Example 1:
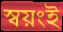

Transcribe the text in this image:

স্বয়ংই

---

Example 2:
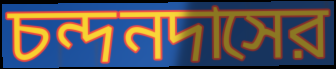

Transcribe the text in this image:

চন্দনদাসের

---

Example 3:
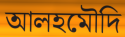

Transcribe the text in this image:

আলহমৌদি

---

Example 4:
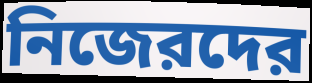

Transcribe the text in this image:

নিজেরদের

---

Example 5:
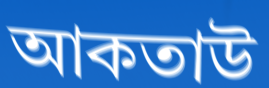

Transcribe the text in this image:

আকতাউ